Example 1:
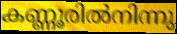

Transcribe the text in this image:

കണ്ണൂരിൽനിന്നു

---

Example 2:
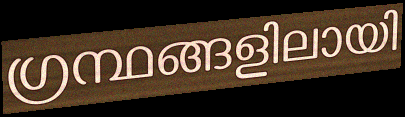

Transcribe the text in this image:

ഗ്രന്ഥങ്ങളിലായി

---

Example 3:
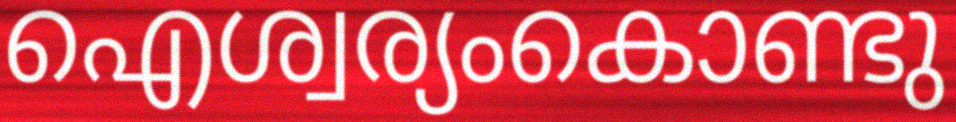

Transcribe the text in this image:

ഐശ്വര്യംകൊണ്ടു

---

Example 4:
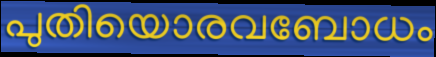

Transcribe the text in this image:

പുതിയൊരവബോധം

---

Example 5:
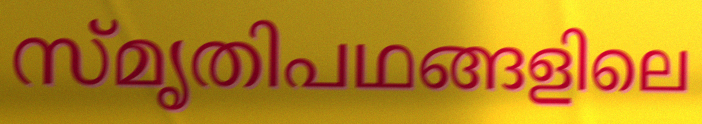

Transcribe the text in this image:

സ്മൃതിപഥങ്ങളിലെ